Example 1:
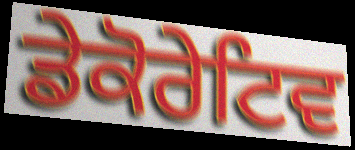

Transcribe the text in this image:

ਡੇਕੋਰੇਟਿਵ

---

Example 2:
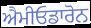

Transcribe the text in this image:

ਐਮੀਓਡਾਰੋਨ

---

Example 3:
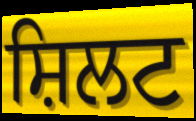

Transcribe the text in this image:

ਸ਼ਿਲਟ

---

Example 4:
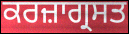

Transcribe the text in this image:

ਕਰਜ਼ਾਗ੍ਰਸਤ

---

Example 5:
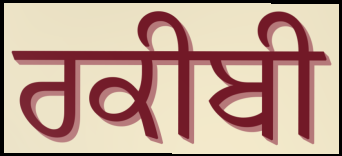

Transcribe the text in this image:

ਰਕੀਬੀ